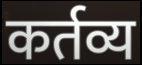
कर्तव्य